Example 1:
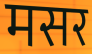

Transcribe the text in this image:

मसर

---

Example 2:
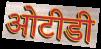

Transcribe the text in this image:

ओटीडी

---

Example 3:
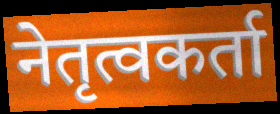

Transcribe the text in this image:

नेतृत्‍वकर्ता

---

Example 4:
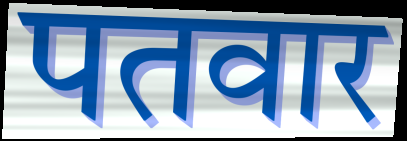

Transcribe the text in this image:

पतवार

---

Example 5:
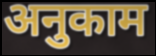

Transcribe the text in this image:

अनुकाम